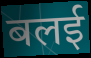
बलई